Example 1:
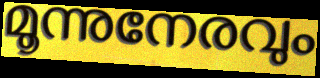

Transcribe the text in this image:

മൂന്നുനേരവും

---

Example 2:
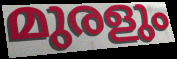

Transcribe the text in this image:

മുരളും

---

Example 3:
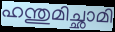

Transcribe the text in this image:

ഹന്തുമിച്ഛാമി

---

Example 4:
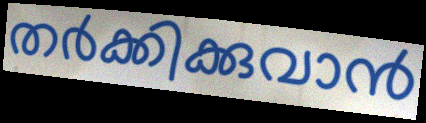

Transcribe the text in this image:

തർക്കിക്കുവാൻ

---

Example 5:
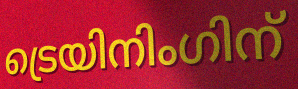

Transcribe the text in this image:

ട്രെയിനിംഗിന്